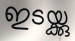
ഇടയ്ക്കു